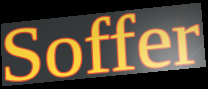
Soffer